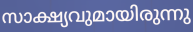
സാക്ഷ്യവുമായിരുന്നു